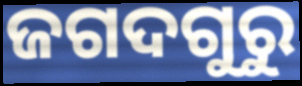
ଜଗଦଗୁରୁ